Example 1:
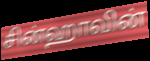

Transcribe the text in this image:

சின்ஹாவின்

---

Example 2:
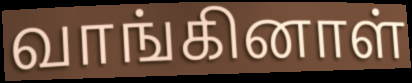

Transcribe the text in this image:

வாங்கினாள்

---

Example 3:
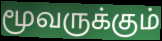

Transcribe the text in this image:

மூவருக்கும்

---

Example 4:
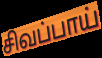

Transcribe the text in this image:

சிவப்பாய்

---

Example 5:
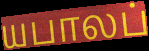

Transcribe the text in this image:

யபாலப்